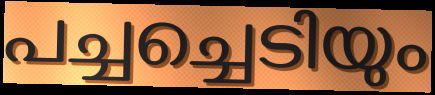
പച്ചച്ചെടിയും